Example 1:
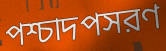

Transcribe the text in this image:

পশ্চাদপসরণ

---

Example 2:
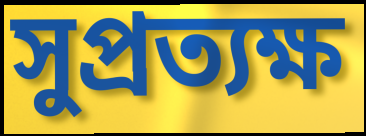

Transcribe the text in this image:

সুপ্রত্যক্ষ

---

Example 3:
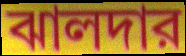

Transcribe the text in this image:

ঝালদার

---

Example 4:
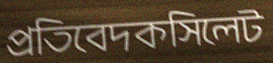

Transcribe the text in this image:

প্রতিবেদকসিলেট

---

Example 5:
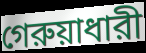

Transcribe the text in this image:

গেরুয়াধারী